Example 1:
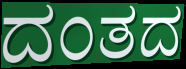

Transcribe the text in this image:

ದಂತದ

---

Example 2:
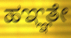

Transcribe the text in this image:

ಹಞ್ಞತೇ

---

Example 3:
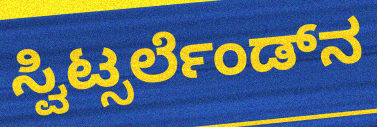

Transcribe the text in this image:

ಸ್ವಿಟ್ಸರ್ಲೆಂಡ್‌ನ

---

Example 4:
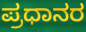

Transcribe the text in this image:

ಪ್ರಧಾನರ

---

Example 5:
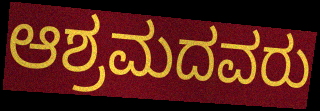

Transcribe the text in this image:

ಆಶ್ರಮದವರು